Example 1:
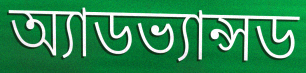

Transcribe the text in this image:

অ্যাডভ্যান্সড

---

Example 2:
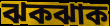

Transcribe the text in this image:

ঝকঝাক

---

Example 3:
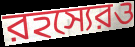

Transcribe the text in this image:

রহস্যেরও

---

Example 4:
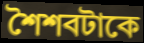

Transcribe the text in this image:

শৈশবটাকে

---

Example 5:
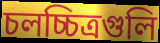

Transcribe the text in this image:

চলচ্চিত্রগুলি